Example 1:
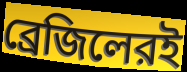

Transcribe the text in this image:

ব্রেজিলেরই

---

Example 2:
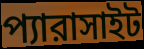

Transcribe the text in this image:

প্যারাসাইট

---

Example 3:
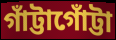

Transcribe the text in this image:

গাঁট্টাগোঁট্টা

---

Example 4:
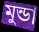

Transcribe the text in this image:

মুন্ডা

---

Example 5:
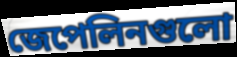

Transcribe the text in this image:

জেপেলিনগুলো